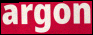
argon